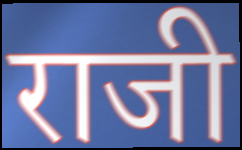
राजी